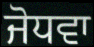
ਜੋਧਵਾ